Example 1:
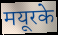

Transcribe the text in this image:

मयूरके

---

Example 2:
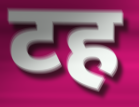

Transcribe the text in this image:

टह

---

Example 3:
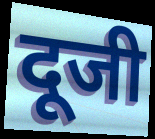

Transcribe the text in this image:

दूजी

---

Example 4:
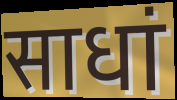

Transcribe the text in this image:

साधां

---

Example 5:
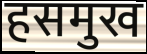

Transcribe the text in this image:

हसमुख